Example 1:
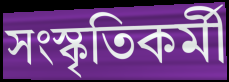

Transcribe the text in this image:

সংস্কৃতিকর্মী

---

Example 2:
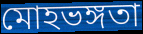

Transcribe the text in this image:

মোহভঙ্গতা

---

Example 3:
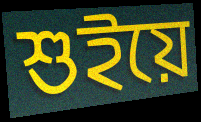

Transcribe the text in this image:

শুইয়ে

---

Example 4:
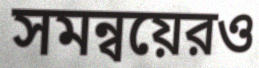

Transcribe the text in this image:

সমন্বয়েরও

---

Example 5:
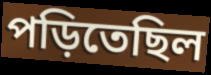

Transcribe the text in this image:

পড়িতেছিল